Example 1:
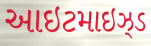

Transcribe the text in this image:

આઇટમાઇઝ્ડ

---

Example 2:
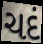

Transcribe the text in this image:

ચદં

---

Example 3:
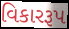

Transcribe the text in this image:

વિકારરૂપ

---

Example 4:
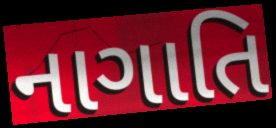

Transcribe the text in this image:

નાગાતિ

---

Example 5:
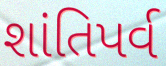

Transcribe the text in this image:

શાંતિપર્વ